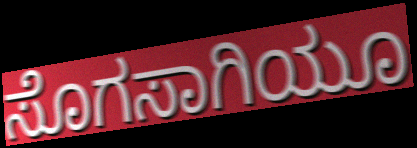
ಸೊಗಸಾಗಿಯೂ